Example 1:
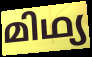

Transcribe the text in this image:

മിഥ്യ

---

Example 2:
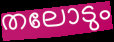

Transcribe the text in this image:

തലോടും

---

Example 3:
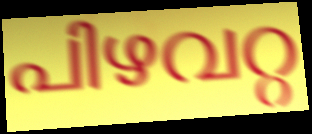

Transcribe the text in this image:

പിഴവറ്റ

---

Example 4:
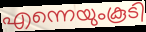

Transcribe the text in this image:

എന്നെയുംകൂടി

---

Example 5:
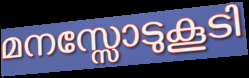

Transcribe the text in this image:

മനസ്സോടുകൂടി